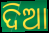
ଦିଆ